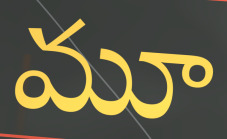
మూ